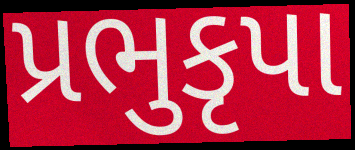
પ્રભુકૃપા